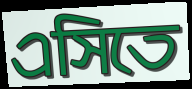
এসিতে